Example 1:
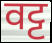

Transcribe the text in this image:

वट्ट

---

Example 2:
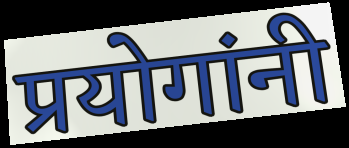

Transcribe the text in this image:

प्रयोगांनी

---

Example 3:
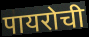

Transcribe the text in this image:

पायरोची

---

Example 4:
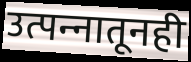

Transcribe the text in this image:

उत्पन्नातूनही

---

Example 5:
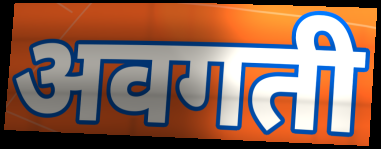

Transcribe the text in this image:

अवगती